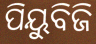
ପିୟୁବିଜି